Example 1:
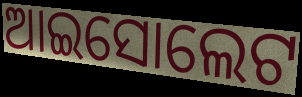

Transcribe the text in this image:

ଆଇସୋଲେଟ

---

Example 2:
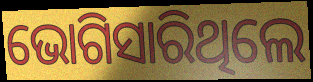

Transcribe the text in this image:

ଭୋଗିସାରିଥିଲେ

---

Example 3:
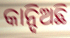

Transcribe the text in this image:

କାନ୍ଦିଅଛି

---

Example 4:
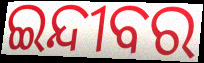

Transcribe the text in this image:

ଇନ୍ଦୀବର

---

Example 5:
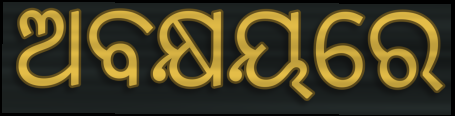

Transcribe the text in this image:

ଅବକ୍ଷୟରେ